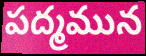
పద్మమున